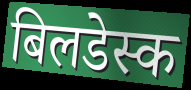
बिलडेस्क